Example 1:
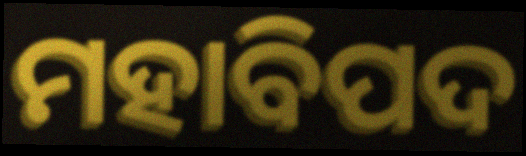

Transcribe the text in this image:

ମହାବିପଦ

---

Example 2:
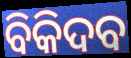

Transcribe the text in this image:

ବିକିଦବ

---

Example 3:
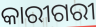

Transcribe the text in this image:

କାରୀଗରୀ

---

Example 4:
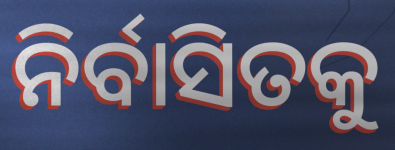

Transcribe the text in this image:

ନିର୍ବାସିତକୁ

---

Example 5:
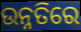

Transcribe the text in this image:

ଉନ୍ନତିରେ